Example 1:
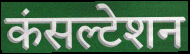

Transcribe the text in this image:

कंसल्टेशन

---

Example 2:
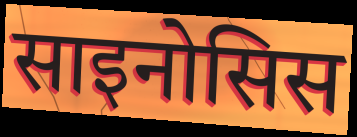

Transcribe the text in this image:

साइनोसिस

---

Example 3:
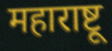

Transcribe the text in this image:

महाराष्टू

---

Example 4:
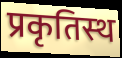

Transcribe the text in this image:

प्रकृतिस्थ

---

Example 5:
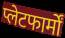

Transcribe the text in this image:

प्लेटफार्मों